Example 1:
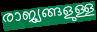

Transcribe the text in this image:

രാജ്യങ്ങളുള്ള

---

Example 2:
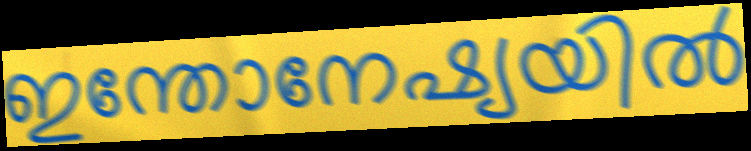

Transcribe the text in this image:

ഇന്തോനേഷ്യയിൽ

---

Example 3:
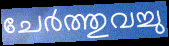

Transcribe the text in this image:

ചേർത്തുവച്ചു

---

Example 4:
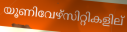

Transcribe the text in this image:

യൂണിവേഴ്സിറ്റികളില്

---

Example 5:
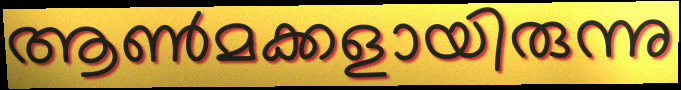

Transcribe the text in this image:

ആൺമക്കളായിരുന്നു